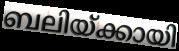
ബലിയ്ക്കായി